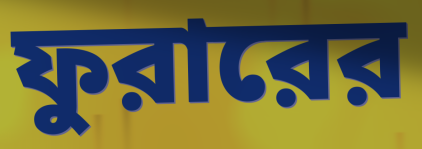
ফুরারের